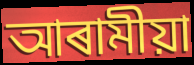
আৰামীয়া